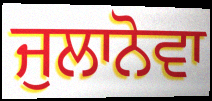
ਜੁਲਾਨੋਵਾ